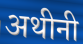
अथीनी